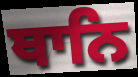
ਥਾਨਿ